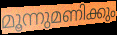
മൂന്നുമണിക്കും